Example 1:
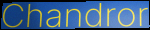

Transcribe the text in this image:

Chandror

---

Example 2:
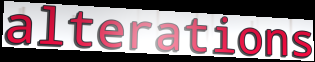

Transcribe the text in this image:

alterations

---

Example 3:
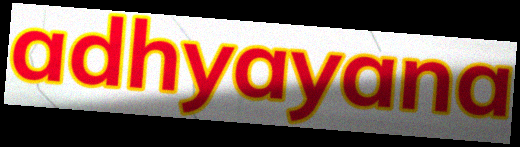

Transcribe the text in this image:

adhyayana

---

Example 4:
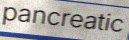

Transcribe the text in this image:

pancreatic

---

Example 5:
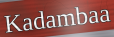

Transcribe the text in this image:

Kadambaa